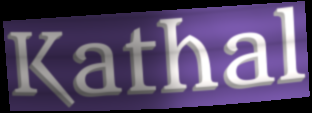
Kathal